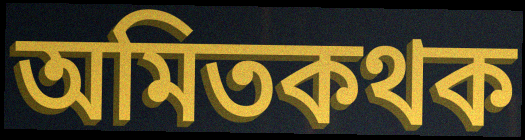
অমিতকথক